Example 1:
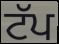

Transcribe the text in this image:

ਟੱਪ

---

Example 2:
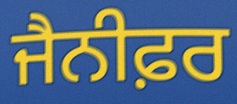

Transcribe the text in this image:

ਜੈਨੀਫ਼ਰ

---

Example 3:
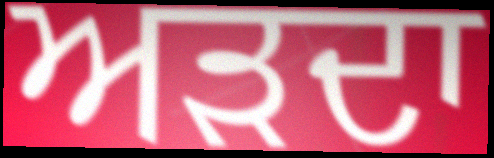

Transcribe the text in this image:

ਅੜਦਾ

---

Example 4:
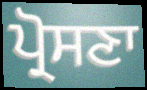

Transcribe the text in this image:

ਪ੍ਰੋਸਣਾ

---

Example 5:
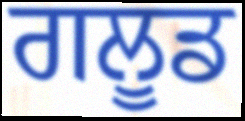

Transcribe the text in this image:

ਗਲੂਡ